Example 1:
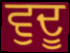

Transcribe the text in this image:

ਵੁਦੂ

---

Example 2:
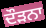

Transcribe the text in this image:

ਦੌੜਨਾ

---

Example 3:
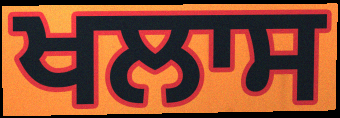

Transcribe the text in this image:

ਖਲਾਸ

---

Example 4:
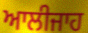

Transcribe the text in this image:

ਆਲੀਜਾਹ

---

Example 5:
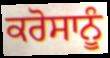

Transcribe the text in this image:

ਕਰੋਸਾਨੂੰ